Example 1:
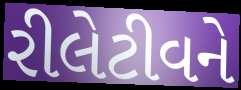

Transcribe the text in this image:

રીલેટીવને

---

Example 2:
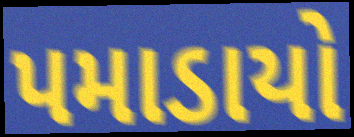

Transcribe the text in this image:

પમાડાયો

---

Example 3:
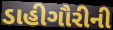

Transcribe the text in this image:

ડાહીગૌરીની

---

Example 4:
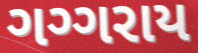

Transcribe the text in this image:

ગગ્ગરાય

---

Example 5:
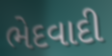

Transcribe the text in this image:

ભેદવાદી